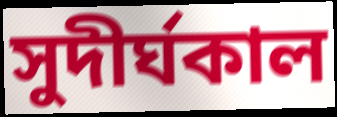
সুদীর্ঘকাল